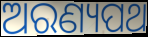
ଅରଣ୍ୟପଥ